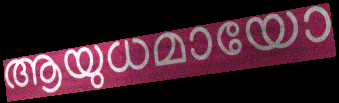
ആയുധമായോ